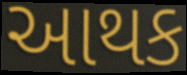
આથક